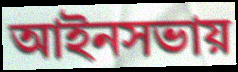
আইনসভায়